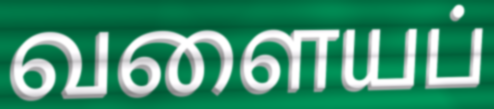
வளையப்